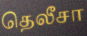
தெலீசா